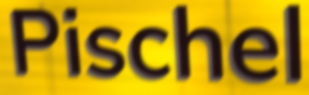
Pischel